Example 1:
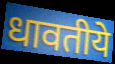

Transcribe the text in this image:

धावतीये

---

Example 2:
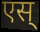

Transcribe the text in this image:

एस्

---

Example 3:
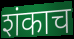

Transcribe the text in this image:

शंकाच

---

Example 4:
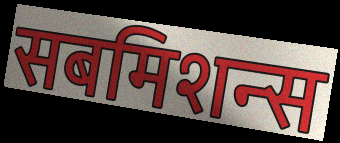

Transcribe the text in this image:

सबमिशन्स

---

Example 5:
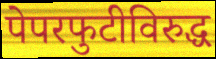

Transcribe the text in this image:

पेपरफुटीविरुद्ध